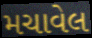
મચાવેલ